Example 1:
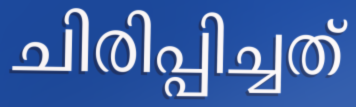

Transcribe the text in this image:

ചിരിപ്പിച്ചത്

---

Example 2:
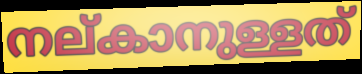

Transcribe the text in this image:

നല്കാനുള്ളത്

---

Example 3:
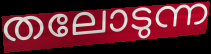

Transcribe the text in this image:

തലോടുന്ന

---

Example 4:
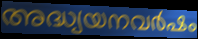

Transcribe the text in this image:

അദ്ധ്യയനവർഷം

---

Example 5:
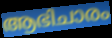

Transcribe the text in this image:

ആഭിചാരം